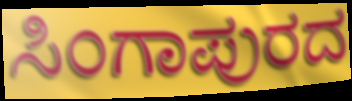
ಸಿಂಗಾಪುರದ